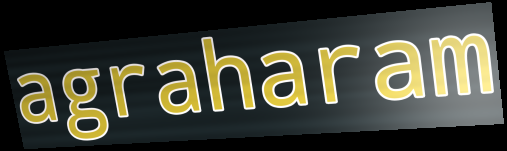
agraharam